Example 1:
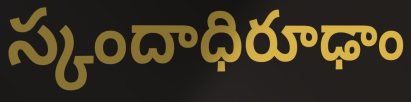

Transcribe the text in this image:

స్కందాధిరూఢాం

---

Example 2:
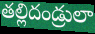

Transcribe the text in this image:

తల్లిదండ్రులా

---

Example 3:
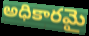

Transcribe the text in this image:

అధికారమై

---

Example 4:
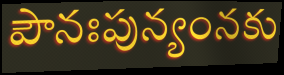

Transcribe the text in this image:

పౌనఃపున్యంనకు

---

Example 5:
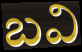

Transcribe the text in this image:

బవి